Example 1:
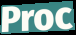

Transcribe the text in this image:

Proc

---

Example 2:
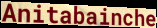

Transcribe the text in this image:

Anitabainche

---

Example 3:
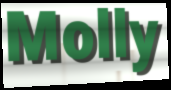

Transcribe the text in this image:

Molly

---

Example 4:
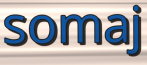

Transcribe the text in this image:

somaj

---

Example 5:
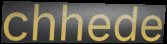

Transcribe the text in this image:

chhede